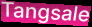
Tangsale